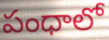
పంధాలో